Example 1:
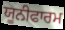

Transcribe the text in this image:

ਯੂਨੀਫਾਰਮ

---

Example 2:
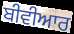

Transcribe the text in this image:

ਬੀਵੀਆਰ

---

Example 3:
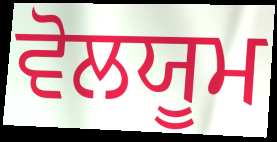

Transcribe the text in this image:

ਵੋਲਯੂਮ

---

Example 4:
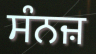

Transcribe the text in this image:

ਸੰਨਜ਼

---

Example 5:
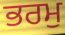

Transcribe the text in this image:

ਭਰਮੁ